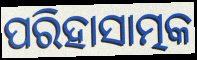
ପରିହାସାତ୍ମକ